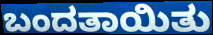
ಬಂದತಾಯಿತು